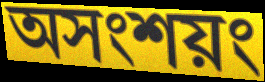
অসংশয়ং